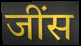
जींस